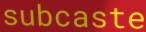
subcaste